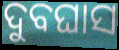
ଦୁବଘାସ